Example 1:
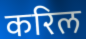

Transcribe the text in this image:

करिल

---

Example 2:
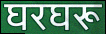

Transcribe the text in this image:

घरघरू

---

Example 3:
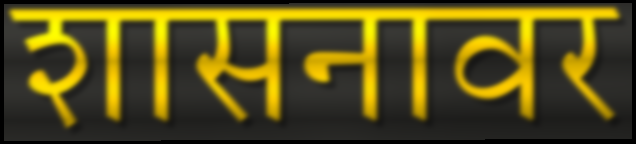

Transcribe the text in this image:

शासनावर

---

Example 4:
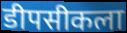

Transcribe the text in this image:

डीपसीकला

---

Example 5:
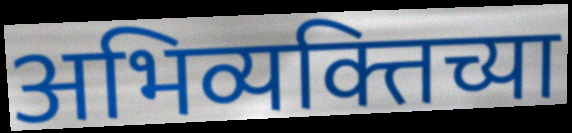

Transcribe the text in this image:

अभिव्यक्तिच्या